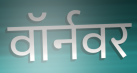
वॉर्नवर